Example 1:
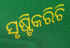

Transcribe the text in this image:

ସୃଷ୍ଟିକରିଚି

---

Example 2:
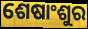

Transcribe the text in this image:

ଶେଷାଂଶୁର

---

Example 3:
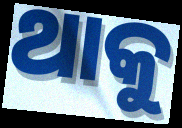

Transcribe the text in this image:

ଥାକୁ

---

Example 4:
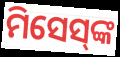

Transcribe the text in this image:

ମିସେସ୍‌ଙ୍କ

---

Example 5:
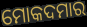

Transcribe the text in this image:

ମୋକଦମାର